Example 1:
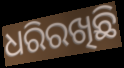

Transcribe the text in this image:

ଧରିରଖିଛି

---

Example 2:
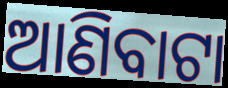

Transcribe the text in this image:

ଆଣିବାଟା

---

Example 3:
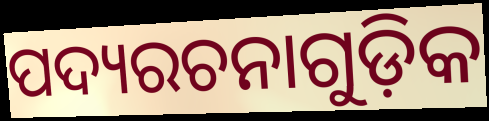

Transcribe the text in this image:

ପଦ୍ୟରଚନାଗୁଡ଼ିକ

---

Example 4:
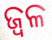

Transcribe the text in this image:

ଜ୍ୱଳ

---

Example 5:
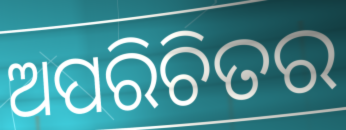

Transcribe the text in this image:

ଅପରିଚିତର